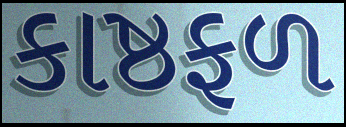
કાષ્ઠફળ